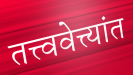
तत्त्ववेत्त्यांत